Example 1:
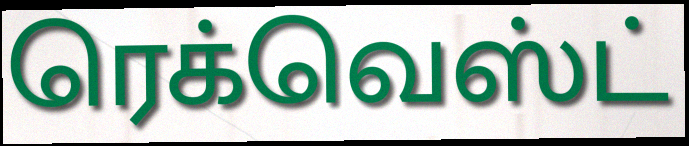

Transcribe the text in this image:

ரெக்வெஸ்ட்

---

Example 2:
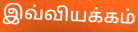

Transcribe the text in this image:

இவ்வியக்கம்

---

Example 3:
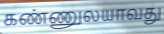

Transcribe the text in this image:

கண்ணுலயாவது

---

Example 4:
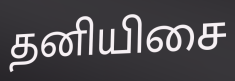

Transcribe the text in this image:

தனியிசை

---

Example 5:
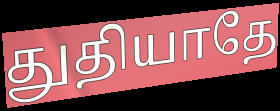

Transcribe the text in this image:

துதியாதே